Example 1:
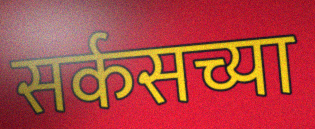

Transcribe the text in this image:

सर्कसच्या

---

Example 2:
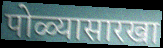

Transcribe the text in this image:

पोळ्यासारखा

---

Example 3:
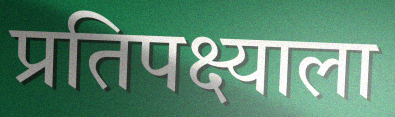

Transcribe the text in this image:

प्रतिपक्ष्याला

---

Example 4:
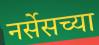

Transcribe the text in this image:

नर्सेसच्या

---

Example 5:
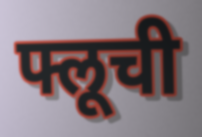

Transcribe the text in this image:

फ्लूची